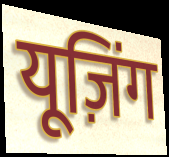
यूज़िंग